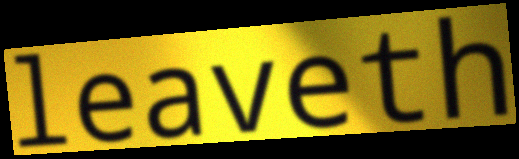
leaveth